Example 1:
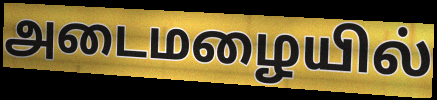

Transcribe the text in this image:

அடைமழையில்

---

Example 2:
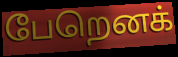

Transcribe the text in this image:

பேறெனக்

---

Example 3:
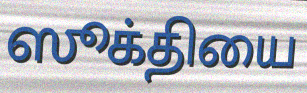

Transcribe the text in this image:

ஸூக்தியை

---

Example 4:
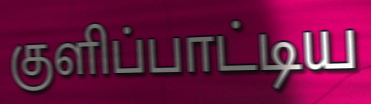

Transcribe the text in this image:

குளிப்பாட்டிய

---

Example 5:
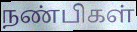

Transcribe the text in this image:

நண்பிகள்